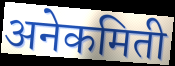
अनेकमिती